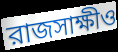
রাজসাক্ষীও